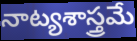
నాట్యశాస్త్రమే